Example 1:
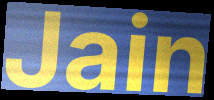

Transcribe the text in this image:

Jain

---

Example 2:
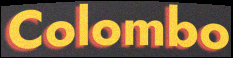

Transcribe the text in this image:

Colombo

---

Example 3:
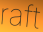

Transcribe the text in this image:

raft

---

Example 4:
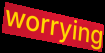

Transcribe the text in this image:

worrying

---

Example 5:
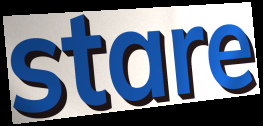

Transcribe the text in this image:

stare